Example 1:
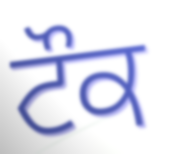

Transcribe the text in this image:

ਟੌਕ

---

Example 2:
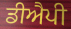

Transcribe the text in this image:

ਡੀਐਪੀ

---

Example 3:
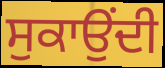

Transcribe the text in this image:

ਸੁਕਾਉਂਦੀ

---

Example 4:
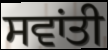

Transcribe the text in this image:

ਸਵਾਂਤੀ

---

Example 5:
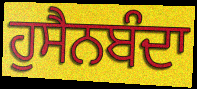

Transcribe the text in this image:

ਹੁਸੈਨਬੰਦਾ